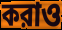
করাও